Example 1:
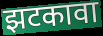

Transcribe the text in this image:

झटकावा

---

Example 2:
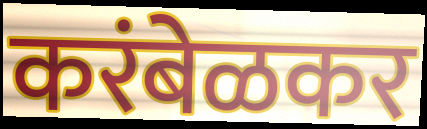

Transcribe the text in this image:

करंबेळकर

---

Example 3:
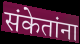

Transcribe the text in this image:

संकेतांना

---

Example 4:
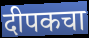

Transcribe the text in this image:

दीपकचा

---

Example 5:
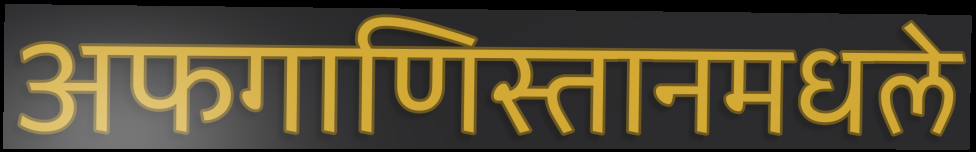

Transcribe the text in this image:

अफगाणिस्तानमधले